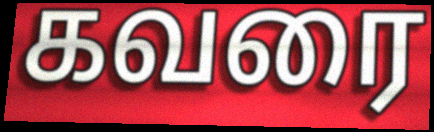
கவரை